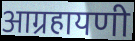
आग्रहायणी